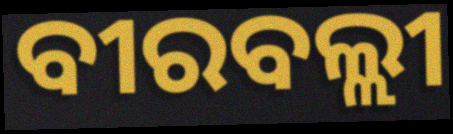
ବୀରବଲ୍ଲୀ